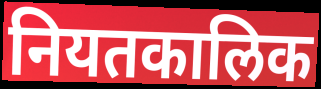
नियतकालिक